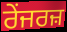
ਰੇਂਜਰਜ਼